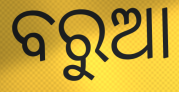
ବରୁଆ